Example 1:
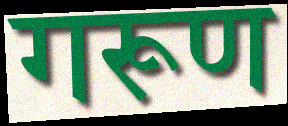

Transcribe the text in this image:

गरूण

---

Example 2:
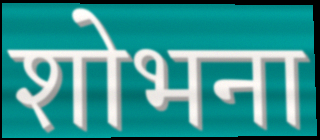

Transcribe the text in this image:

शोभना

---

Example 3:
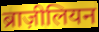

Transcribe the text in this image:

ब्राज़ीलियन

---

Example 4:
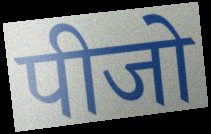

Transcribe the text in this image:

पीजो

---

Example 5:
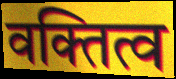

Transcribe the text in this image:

वक्तित्व